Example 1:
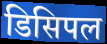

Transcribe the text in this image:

डिसिपल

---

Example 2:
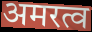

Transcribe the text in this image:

अमरत्व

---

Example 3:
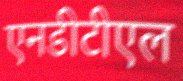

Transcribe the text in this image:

एनडीटीएल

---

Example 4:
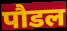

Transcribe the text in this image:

पौडल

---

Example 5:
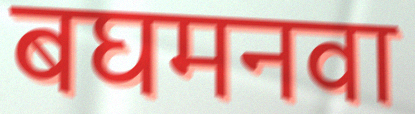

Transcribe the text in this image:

बघमनवा